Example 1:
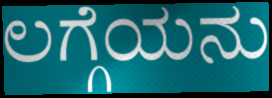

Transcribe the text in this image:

ಲಗ್ಗೆಯನು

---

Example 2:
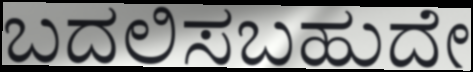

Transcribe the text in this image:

ಬದಲಿಸಬಹುದೇ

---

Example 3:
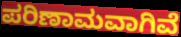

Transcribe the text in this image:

ಪರಿಣಾಮವಾಗಿವೆ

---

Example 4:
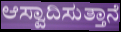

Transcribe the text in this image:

ಆಸ್ವಾದಿಸುತ್ತಾನೆ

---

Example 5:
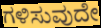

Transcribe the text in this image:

ಗಳಿಸುವುದೇ